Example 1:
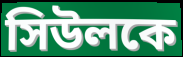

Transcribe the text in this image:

সিউলকে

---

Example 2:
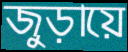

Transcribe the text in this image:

জুড়ায়ে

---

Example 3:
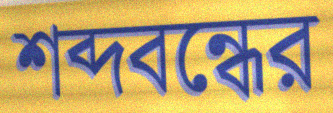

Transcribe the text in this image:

শব্দবন্ধের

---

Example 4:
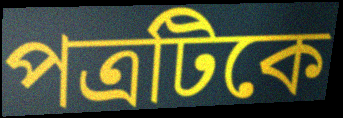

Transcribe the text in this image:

পত্রটিকে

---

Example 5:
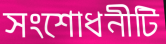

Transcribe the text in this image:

সংশোধনীটি